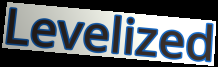
Levelized